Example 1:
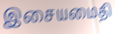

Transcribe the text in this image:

இசையமைதி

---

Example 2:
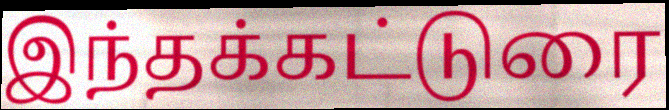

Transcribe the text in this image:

இந்தக்கட்டுரை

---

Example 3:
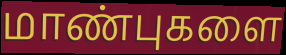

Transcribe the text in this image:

மாண்புகளை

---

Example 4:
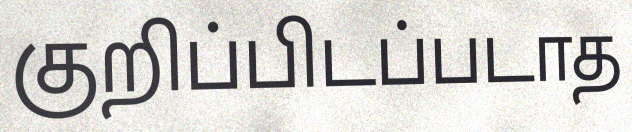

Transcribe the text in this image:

குறிப்பிடப்படாத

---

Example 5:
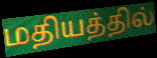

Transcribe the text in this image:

மதியத்தில்